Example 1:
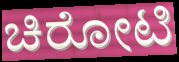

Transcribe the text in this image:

ಚಿರೋಟಿ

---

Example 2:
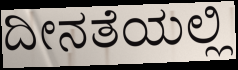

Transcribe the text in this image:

ದೀನತೆಯಲ್ಲಿ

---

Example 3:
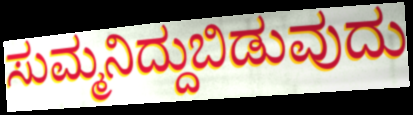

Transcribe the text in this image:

ಸುಮ್ಮನಿದ್ದುಬಿಡುವುದು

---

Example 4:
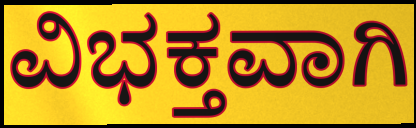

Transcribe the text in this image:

ವಿಭಕ್ತವಾಗಿ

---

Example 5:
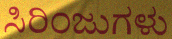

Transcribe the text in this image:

ಸಿರಿಂಜುಗಳು